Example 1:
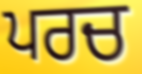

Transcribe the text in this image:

ਪਰਚ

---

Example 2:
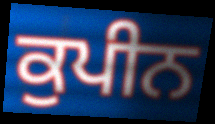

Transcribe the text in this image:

ਕੁਪੀਨ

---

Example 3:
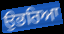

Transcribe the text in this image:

ਉਭਰਿਆ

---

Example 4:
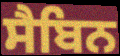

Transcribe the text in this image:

ਸੈਬਿਨ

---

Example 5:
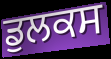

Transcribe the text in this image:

ਡੁਲਕਸ